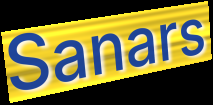
Sanars